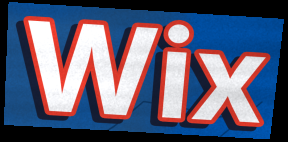
Wix